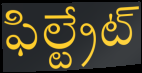
ఫిల్ట్రేట్